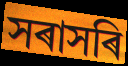
সৰাসৰি